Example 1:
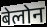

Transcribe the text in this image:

बेलोन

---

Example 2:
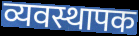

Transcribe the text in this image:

व्यवस्थापक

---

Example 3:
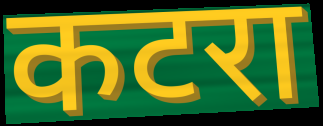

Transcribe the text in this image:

कटरा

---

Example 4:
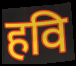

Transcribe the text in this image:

हवि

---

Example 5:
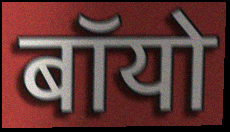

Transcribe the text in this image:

बॉयो